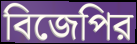
বিজেপির